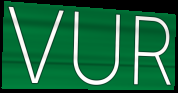
VUR